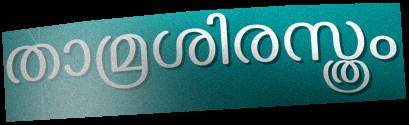
താമ്രശിരസ്ത്രം